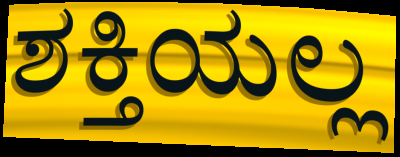
ಶಕ್ತಿಯಲ್ಲ